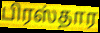
பிரஸ்தார